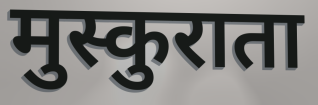
मुस्कुराता